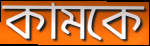
কামকে